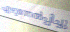
എഴുന്നേൽപ്പിച്ചു